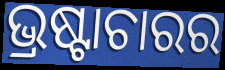
ଭ୍ରଷ୍ଟାଚାରର